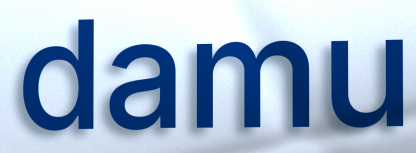
damu